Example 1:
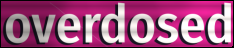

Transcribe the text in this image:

overdosed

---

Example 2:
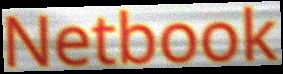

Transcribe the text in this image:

Netbook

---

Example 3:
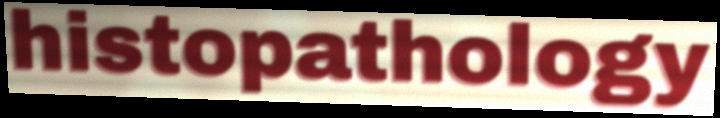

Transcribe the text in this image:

histopathology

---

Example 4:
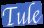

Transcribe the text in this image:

Tule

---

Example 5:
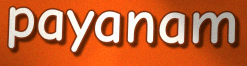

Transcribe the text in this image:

payanam